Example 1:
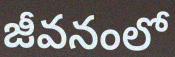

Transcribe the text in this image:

జీవనంలో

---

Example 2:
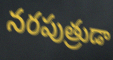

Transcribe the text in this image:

నరపుత్రుడా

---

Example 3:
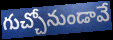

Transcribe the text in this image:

గుచ్చోనుండావే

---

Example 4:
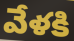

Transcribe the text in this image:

వేళకి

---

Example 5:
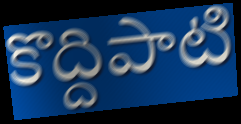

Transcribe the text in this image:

కొద్దిపాటి